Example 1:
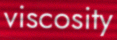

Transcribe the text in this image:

viscosity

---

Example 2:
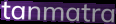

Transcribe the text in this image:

tanmatra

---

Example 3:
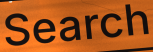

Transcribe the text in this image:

Search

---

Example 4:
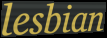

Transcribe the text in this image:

lesbian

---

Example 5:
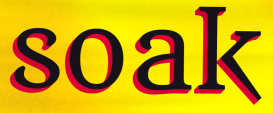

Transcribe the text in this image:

soak